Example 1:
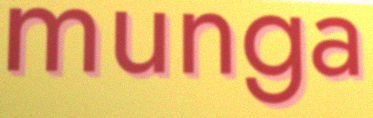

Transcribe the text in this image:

munga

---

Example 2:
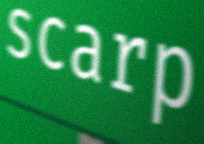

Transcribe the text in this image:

scarp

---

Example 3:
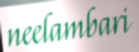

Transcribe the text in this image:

neelambari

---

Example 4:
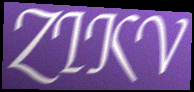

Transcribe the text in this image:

ZIKV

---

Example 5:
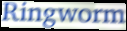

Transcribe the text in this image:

Ringworm